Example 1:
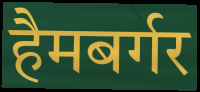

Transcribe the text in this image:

हैमबर्गर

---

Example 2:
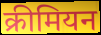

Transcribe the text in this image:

क्रीमियन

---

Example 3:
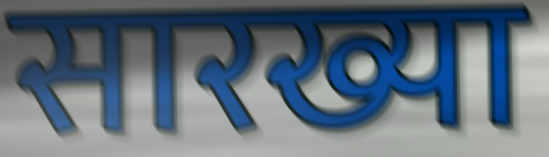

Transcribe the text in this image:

सारख्या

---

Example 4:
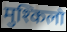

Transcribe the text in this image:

मुश्किलो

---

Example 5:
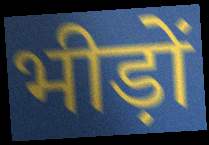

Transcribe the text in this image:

भीड़ों